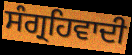
ਸੰਗ੍ਰਹਿਵਾਦੀ